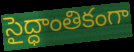
సైద్ధాంతికంగా